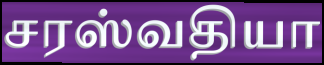
சரஸ்வதியா